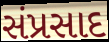
સંપ્રસાદ